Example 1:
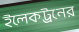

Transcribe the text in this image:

ইলেকট্রনের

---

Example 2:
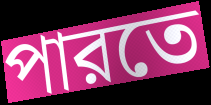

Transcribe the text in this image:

পারতে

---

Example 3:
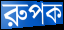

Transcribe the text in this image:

রুপক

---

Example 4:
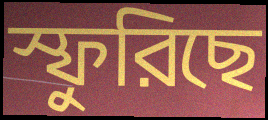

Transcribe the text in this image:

স্ফুরিছে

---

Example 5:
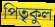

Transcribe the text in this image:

পিতৃকুল